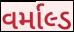
વર્માલ્ડ